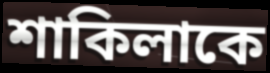
শাকিলাকে